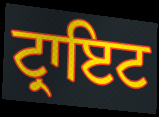
ਟ੍ਰਾਇਟ